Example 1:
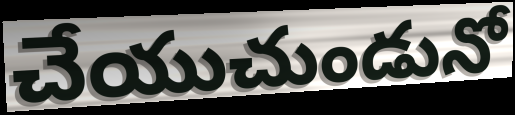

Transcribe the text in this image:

చేయుచుండునో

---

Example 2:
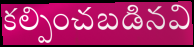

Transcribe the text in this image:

కల్పించబడినవి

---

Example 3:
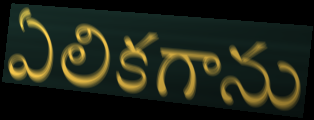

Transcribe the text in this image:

ఏలికగాను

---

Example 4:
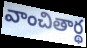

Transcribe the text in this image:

వాంచితార్థ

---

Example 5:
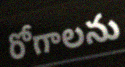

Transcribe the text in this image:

రోగాలను